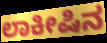
ಲಾಕೀಷಿನ